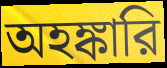
অহঙ্কারি